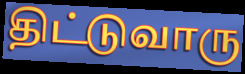
திட்டுவாரு